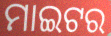
ମାଇଟର